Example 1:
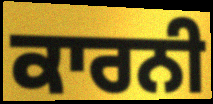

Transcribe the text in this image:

ਕਾਰਨੀ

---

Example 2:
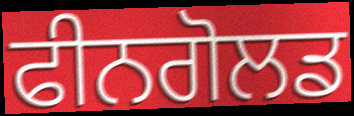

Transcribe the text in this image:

ਫੀਨਗੋਲਡ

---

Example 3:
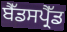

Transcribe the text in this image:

ਬੈੱਡਸਪ੍ਰੈੱਡ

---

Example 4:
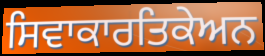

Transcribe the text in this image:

ਸਿਵਾਕਾਰਤਿਕੇਅਨ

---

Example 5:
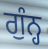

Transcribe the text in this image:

ਗੁੰਨ੍ਹ